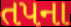
તપના